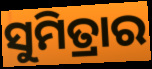
ସୁମିତ୍ରାର